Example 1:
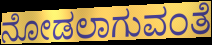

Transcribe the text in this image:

ನೋಡಲಾಗುವಂತೆ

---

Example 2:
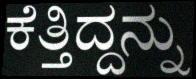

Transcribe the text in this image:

ಕೆತ್ತಿದ್ದನ್ನು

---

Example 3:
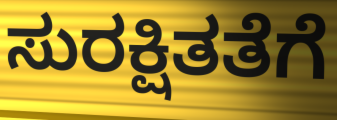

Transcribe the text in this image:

ಸುರಕ್ಷಿತತೆಗೆ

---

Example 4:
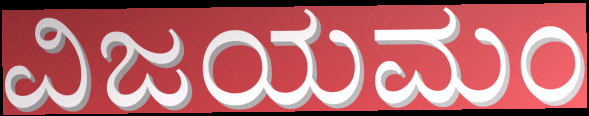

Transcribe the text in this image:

ವಿಜಯಮಂ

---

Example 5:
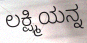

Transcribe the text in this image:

ಲಕ್ಷ್ಮಿಯನ್ನ